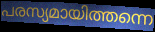
പരസ്യമായിത്തന്നെ